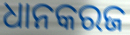
ଧାନକରଜ